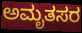
ಅಮೃತಸರ